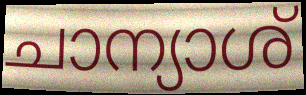
ചാന്യാശ്